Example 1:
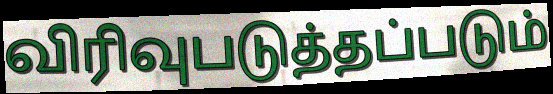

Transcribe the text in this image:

விரிவுபடுத்தப்படும்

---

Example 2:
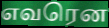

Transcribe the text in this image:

எவரென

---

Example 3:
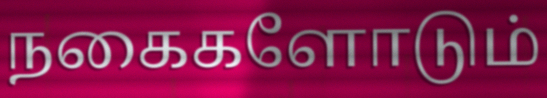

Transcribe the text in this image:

நகைகளோடும்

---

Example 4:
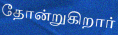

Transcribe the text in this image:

தோன்றுகிறார்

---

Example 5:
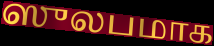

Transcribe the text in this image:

ஸுலபமாக